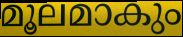
മൂലമാകും